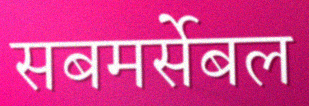
सबमर्सेबल